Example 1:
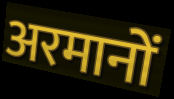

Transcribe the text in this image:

अरमानों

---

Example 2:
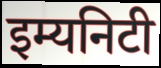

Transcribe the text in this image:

इम्यनिटी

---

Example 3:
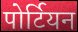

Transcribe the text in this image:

पोर्टियन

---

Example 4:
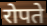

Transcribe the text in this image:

रोपते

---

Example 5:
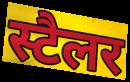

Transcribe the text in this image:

स्टैलर